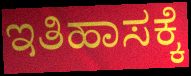
ಇತಿಹಾಸಕ್ಕೆ